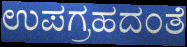
ಉಪಗ್ರಹದಂತೆ